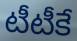
టీటీకే